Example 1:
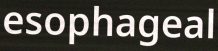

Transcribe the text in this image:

esophageal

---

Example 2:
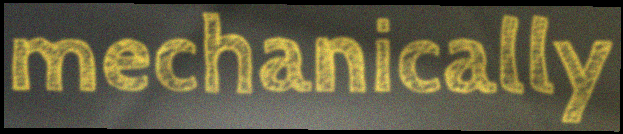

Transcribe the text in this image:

mechanically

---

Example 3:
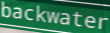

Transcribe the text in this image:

backwater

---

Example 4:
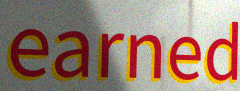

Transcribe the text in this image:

earned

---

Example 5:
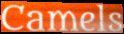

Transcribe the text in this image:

Camels